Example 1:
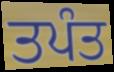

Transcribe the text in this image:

ਤਪੰਤ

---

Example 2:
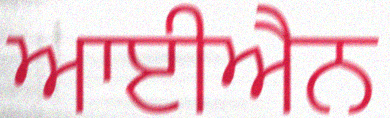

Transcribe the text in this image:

ਆਈਐਨ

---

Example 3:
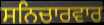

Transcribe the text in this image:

ਸਨਿਚਾਰਵਾਰ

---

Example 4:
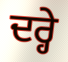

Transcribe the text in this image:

ਦਰ੍ਹੇ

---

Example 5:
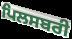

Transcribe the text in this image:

ਪਿਲਸਬਰੀ